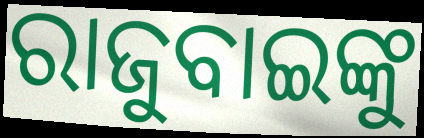
ରାଜୁବାଇଙ୍କୁ